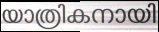
യാത്രികനായി